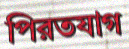
পিরতযাগ